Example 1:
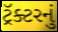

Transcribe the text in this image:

ટ્રૅક્ટરનું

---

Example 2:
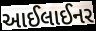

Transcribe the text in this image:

આઈલાઈનર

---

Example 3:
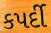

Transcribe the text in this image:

કપર્દી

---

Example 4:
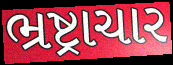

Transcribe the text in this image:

ભ્રષ્ટ્રાચાર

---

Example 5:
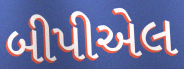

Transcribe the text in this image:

બીપીએલ